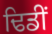
ਢਿਡੀਂ